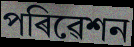
পৰিৱেশন